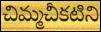
చిమ్మచీకటిని